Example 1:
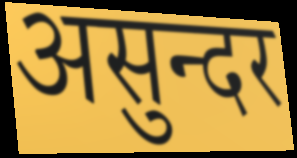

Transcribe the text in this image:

असुन्दर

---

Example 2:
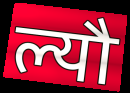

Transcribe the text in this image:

ल्यौ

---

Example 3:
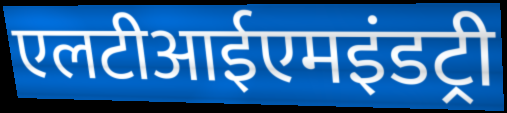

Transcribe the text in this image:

एलटीआईएमइंडट्री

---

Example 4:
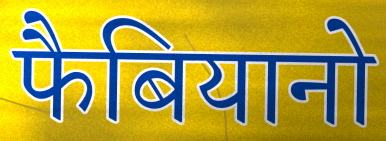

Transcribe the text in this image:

फैबियानो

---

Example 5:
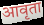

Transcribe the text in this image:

आवृता